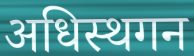
अधिस्थगन